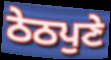
ਠੇਠਪੁਣੇ